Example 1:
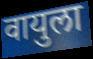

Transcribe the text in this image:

वायुला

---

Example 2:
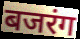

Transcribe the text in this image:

बजरंग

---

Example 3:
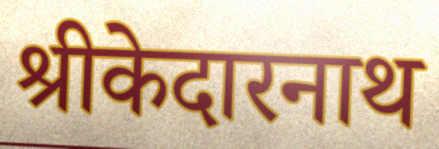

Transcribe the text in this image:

श्रीकेदारनाथ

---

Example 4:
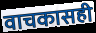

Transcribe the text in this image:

वाचकासही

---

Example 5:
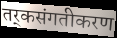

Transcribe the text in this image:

तर्कसंगतीकरण